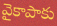
వైకాపాకు